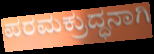
ಪರಮಕ್ರುದ್ಧನಾಗಿ